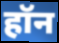
हॉन